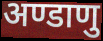
अण्डाणु